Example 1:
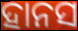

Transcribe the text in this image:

ହାନସ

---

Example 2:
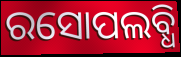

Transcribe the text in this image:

ରସୋପଲବ୍ଧି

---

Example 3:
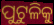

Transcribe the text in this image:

ପୁଟୁଳିକୁ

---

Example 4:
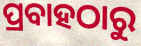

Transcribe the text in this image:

ପ୍ରବାହଠାରୁ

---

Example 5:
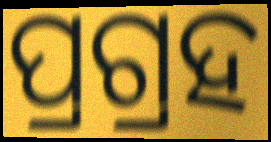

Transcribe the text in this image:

ପ୍ରଗ୍ରହ